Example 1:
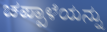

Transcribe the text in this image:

ಚಪ್ಪಾಳೆಯನ್ನು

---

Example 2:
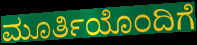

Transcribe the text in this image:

ಮೂರ್ತಿಯೊಂದಿಗೆ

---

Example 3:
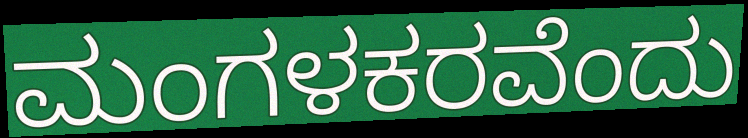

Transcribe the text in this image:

ಮಂಗಳಕರವೆಂದು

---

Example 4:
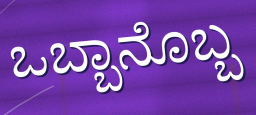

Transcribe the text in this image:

ಒಬ್ಬಾನೊಬ್ಬ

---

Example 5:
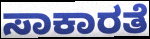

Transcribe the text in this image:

ಸಾಕಾರತೆ